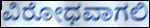
ವಿರೋಧವಾಗಲಿ